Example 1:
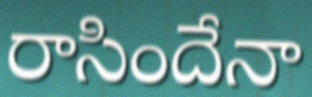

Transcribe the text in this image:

రాసిందేనా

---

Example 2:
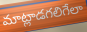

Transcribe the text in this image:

మాట్లాడగలిగేలా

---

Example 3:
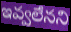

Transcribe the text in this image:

ఇవ్వలేనని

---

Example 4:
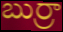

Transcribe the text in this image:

బుర్రా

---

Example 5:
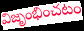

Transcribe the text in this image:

విజృంభించటం